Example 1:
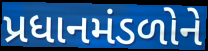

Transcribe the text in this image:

પ્રધાનમંડળોને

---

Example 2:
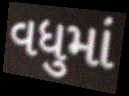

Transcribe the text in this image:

વધુમાં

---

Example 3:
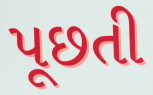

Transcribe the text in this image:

પૂછતી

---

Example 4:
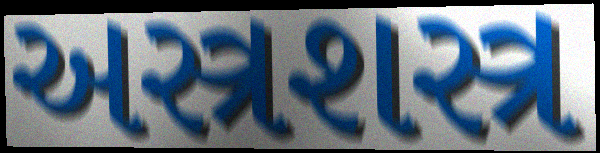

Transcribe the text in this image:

અસ્ત્રશસ્ત્ર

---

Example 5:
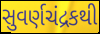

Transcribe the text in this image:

સુવર્ણચંદ્રકથી